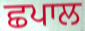
ਛਪਾਲ